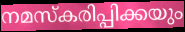
നമസ്കരിപ്പിക്കയും